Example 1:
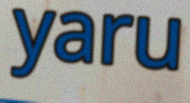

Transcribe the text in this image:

yaru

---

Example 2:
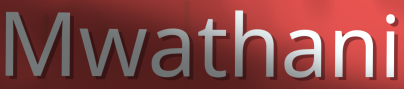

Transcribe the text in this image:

Mwathani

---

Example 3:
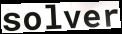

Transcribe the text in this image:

solver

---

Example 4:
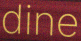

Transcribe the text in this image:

dine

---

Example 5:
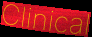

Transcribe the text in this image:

Clinical